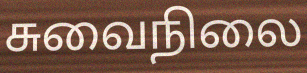
சுவைநிலை